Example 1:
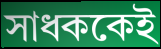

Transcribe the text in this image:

সাধককেই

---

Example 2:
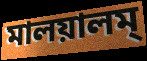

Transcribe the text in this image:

মালয়ালম্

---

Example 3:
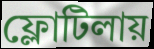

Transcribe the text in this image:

ফ্লোটিলায়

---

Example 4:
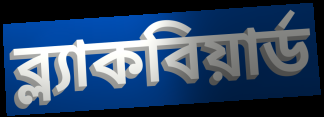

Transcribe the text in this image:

ব্ল্যাকবিয়ার্ড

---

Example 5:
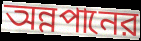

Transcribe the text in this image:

অন্নপানের